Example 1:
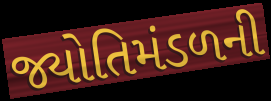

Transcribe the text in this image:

જ્યોતિમંડળની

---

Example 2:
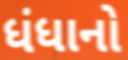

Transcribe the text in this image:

ધંધાનો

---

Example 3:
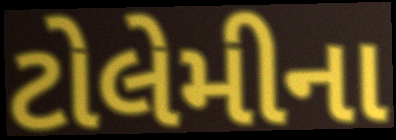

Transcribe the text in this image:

ટોલેમીના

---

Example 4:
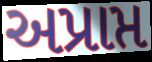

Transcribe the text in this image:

અપ્રાપ્ત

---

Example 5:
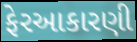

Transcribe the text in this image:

ફેરઆકારણી